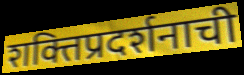
शक्तिप्रदर्शनाची